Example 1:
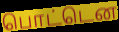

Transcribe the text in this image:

பொட்டென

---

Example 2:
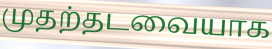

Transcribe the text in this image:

முதற்தடவையாக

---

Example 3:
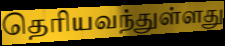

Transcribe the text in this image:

தெரியவந்துள்ளது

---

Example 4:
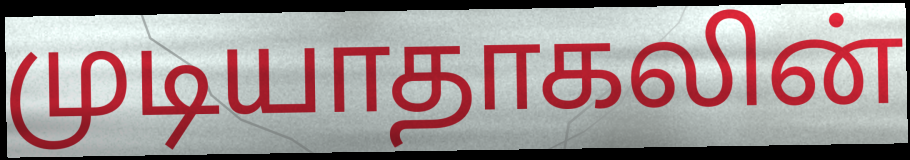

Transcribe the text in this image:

முடியாதாகலின்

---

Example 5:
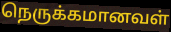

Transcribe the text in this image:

நெருக்கமானவள்